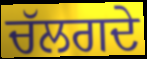
ਚੱਲਗਦੇ